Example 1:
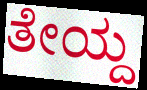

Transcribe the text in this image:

ತೇಯ್ದ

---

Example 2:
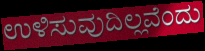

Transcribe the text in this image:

ಉಳಿಸುವುದಿಲ್ಲವೆಂದು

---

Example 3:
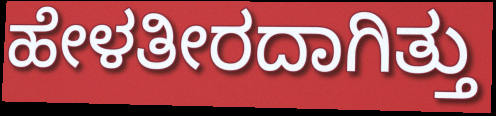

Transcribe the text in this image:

ಹೇಳತೀರದಾಗಿತ್ತು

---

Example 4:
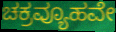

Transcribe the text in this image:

ಚಕ್ರವ್ಯೂಹವೇ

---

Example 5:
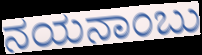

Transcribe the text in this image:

ನಯನಾಂಬು